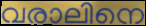
വരാലിനെ